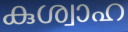
കുശ്വാഹ